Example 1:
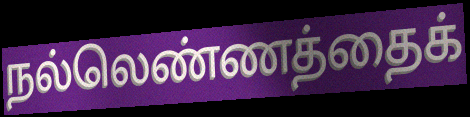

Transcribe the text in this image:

நல்லெண்ணத்தைக்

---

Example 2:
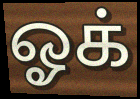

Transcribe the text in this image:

ஓக்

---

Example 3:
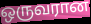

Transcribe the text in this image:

ஒருவரான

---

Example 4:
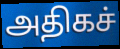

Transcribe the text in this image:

அதிகச்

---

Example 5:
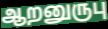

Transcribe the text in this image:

ஆறனுருபு